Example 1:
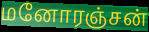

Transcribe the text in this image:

மனோரஞ்சன்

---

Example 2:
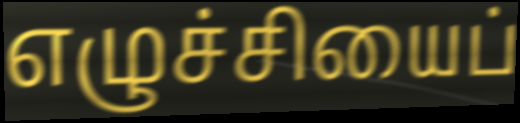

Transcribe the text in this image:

எழுச்சியைப்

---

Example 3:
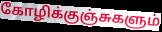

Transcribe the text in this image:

கோழிக்குஞ்சுகளும்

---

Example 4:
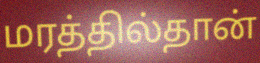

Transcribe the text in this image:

மரத்தில்தான்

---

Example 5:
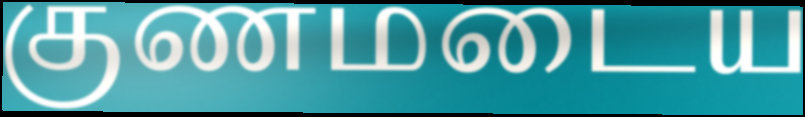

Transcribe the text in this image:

குணமடைய